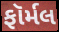
ફૉર્મલ